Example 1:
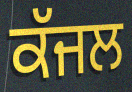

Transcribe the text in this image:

ਕੱਜਲ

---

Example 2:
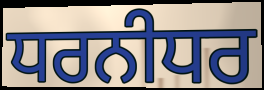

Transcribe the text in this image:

ਧਰਨੀਧਰ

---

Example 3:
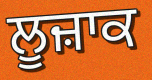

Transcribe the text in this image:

ਲੂਜ਼ਾਕ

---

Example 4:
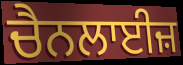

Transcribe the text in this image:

ਚੈਨਲਾਈਜ਼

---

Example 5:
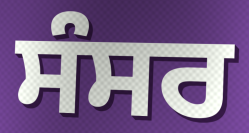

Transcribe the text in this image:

ਸੰਸਰ